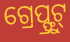
ଗ୍ରେପ୍ଫ୍ରୁଟ୍